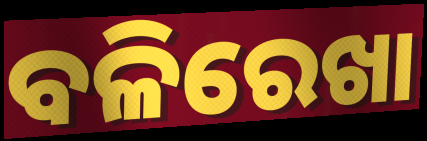
ବଳିରେଖା